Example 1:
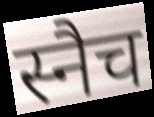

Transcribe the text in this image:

स्नैच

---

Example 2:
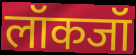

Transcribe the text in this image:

लॉकजॉ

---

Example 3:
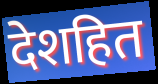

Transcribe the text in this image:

देशहित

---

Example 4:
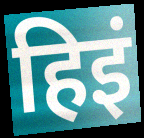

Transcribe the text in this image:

हिइं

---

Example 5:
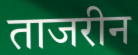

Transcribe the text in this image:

ताजरीन